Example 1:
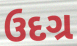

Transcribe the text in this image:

ઉદગ્ર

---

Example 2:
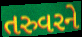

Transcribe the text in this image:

તરુવરને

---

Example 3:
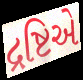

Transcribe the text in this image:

દ્રષ્ટિએ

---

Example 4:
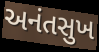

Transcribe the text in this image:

અનંતસુખ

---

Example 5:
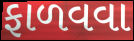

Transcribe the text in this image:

ફાળવવા